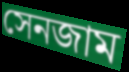
সেনজাম